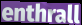
enthrall